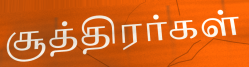
சூத்திரர்கள்